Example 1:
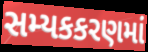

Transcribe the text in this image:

સમ્યકકરણમાં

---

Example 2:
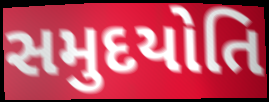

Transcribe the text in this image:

સમુદયોતિ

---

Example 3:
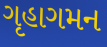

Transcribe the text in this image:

ગૃહાગમન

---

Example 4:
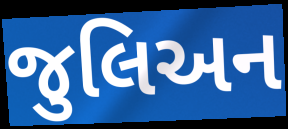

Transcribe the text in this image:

જુલિઅન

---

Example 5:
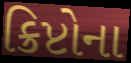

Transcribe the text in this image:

ક્રિપ્ટોના